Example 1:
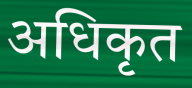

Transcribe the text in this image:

अधिकृत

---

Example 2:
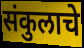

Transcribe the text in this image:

संकुलाचे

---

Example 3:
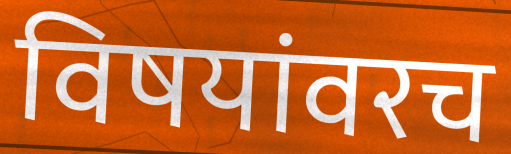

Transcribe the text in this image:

विषयांवरच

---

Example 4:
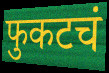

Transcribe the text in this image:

फुकटचं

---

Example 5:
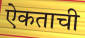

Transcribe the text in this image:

ऐकताची